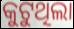
କୁଟୁଥିଲା